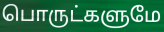
பொருட்களுமே